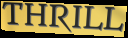
THRILL